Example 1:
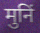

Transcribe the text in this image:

मुनिं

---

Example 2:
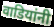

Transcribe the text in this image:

वाडियांनी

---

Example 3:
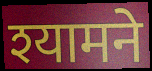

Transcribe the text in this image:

श्यामने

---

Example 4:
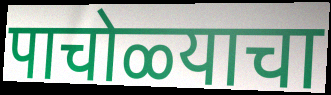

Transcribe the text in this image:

पाचोळ्याचा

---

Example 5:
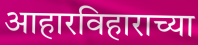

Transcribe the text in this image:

आहारविहाराच्या